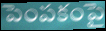
పెంపకంపై